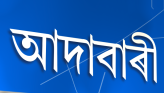
আদাবাৰী